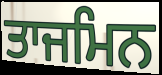
ਤਾਜਮਿਨ